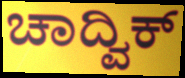
ಚಾದ್ವಿಕ್